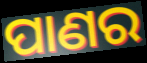
ପାଣର